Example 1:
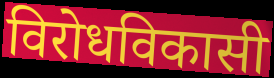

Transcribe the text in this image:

विरोधविकासी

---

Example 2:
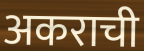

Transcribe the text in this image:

अकराची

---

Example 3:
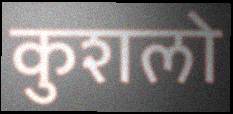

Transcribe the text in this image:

कुशलो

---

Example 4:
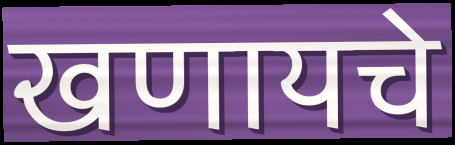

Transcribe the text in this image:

खणायचे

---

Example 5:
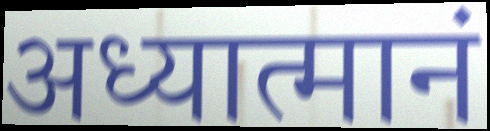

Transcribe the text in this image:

अध्यात्मानं